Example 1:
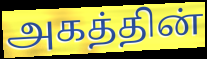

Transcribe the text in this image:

அகத்தின்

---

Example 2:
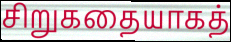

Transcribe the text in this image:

சிறுகதையாகத்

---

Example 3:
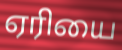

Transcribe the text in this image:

ஏரியை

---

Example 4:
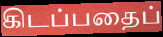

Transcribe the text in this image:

கிடப்பதைப்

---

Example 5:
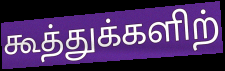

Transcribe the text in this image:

கூத்துக்களிற்